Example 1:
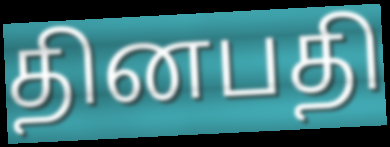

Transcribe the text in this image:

தினபதி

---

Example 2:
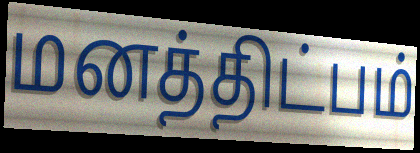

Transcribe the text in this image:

மனத்திட்பம்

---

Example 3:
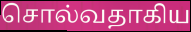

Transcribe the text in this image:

சொல்வதாகிய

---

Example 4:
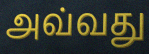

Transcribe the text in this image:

அவ்வது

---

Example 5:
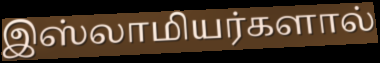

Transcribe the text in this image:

இஸ்லாமியர்களால்